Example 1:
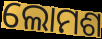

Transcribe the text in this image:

ଲୋମଶ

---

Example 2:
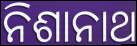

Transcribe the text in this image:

ନିଶାନାଥ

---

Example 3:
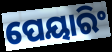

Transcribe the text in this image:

ପେୟାରିଂ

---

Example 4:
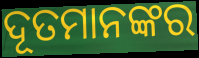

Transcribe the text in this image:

ଦୂତମାନଙ୍କର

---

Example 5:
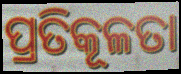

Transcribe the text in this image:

ପ୍ରତିକୂଳତା